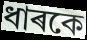
ধাৰকে